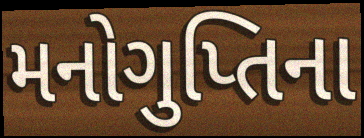
મનોગુપ્તિના